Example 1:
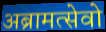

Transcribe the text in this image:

अब्रामत्सेवो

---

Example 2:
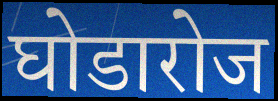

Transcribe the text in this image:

घोडारोज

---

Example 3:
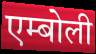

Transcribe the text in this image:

एम्बोली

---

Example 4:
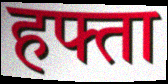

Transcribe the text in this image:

हफ्ता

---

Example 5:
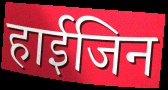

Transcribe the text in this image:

हाईजिन